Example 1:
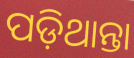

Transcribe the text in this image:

ପଡ଼ିଥାନ୍ତା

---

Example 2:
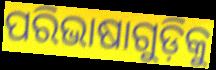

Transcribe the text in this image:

ପରିଭାଷାଗୁଡ଼ିକୁ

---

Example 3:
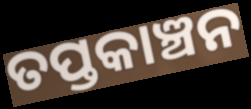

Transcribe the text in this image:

ତପ୍ତକାଞ୍ଚନ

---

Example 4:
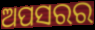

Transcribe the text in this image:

ଅପସରର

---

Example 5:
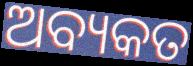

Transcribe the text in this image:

ଅବ୍ୟକତ